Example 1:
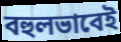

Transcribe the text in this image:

বহুলভাবেই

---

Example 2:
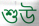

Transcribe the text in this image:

শুউ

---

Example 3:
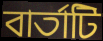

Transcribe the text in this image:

বার্তাটি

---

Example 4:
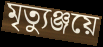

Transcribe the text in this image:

মৃত্যুঞ্জয়ে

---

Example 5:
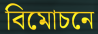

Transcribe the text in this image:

বিমোচনে